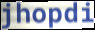
jhopdi